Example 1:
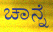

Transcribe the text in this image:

ಚಾನ್ನೆ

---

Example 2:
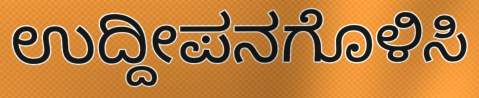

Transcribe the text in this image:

ಉದ್ದೀಪನಗೊಳಿಸಿ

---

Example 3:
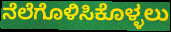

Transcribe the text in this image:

ನೆಲೆಗೊಳಿಸಿಕೊಳ್ಳಲು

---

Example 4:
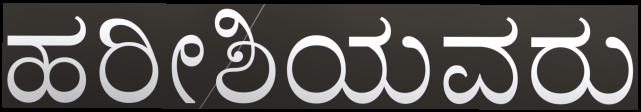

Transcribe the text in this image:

ಹರೀಶಿಯವರು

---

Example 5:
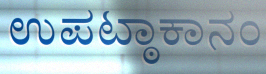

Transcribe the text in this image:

ಉಪಟ್ಠಾಕಾನಂ